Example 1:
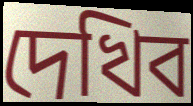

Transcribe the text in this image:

দেখিব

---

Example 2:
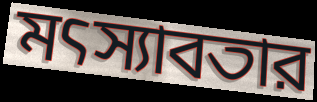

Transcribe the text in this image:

মৎস্যাবতার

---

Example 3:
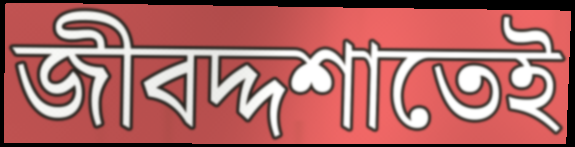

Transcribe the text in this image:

জীবদ্দশাতেই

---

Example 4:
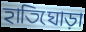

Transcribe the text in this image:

হাতিঘোড়া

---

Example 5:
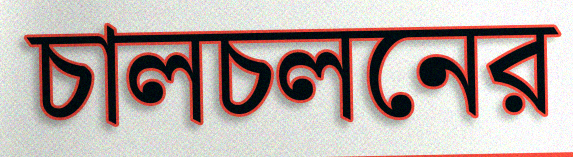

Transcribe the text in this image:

চালচলনের